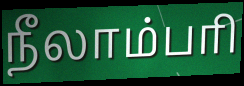
நீலாம்பரி